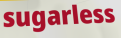
sugarless